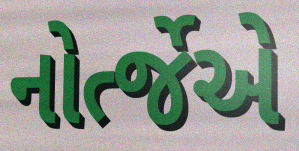
નોર્ત્જેએ